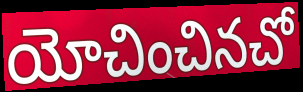
యోచించినచో